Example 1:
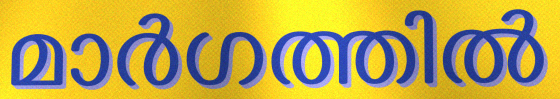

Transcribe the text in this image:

മാർഗത്തിൽ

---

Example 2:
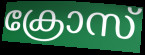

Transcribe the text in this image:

ക്രോസ്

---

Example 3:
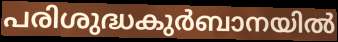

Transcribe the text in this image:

പരിശുദ്ധകുർബാനയിൽ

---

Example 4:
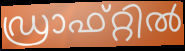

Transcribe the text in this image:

ഡ്രാഫ്റ്റിൽ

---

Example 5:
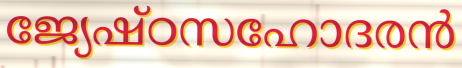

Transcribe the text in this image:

ജ്യേഷ്ഠസഹോദരൻ